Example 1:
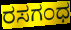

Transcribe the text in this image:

ರಸಗಂಧ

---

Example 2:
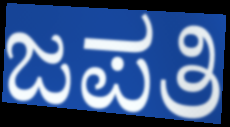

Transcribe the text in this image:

ಜಪತಿ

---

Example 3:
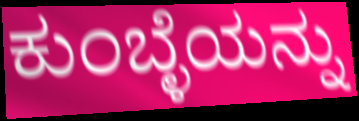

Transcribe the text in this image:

ಕುಂಬ್ಳೆಯನ್ನು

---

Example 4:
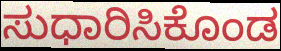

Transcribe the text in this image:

ಸುಧಾರಿಸಿಕೊಂಡ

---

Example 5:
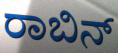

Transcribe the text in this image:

ರಾಬಿನ್